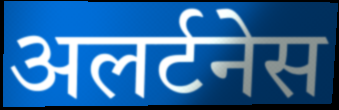
अलर्टनेस